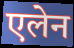
एलेन